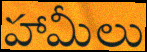
హామీలు